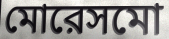
মোরেসমো